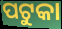
ପଟୁକା